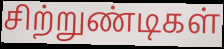
சிற்றுண்டிகள்